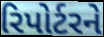
રિપોર્ટરને